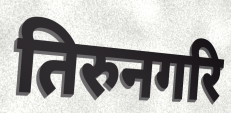
तिरुनगरि